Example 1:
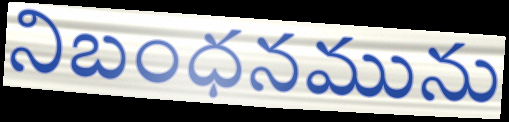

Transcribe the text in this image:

నిబంధనమును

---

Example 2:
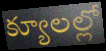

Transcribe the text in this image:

క్యూలల్లో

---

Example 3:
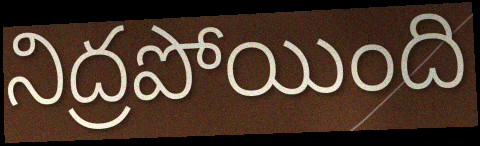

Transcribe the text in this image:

నిద్రపోయింది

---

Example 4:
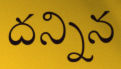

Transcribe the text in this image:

దన్నిన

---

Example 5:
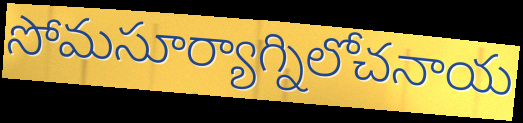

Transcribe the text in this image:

సోమసూర్యాగ్నిలోచనాయ